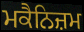
ਮਕੈਨਿਜ਼ਮ